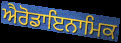
ਐਰੋਡਾਇਨਾਮਿਕ